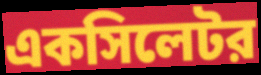
একসিলেটর